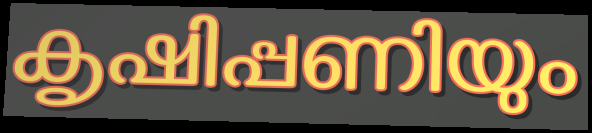
കൃഷിപ്പണിയും